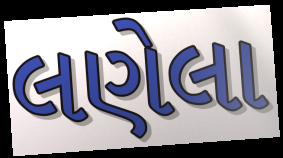
લણેલા